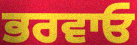
ਭਰਵਾਓ